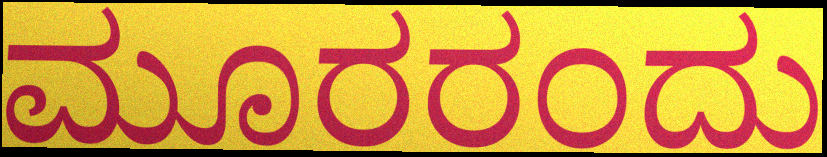
ಮೂರರಂದು